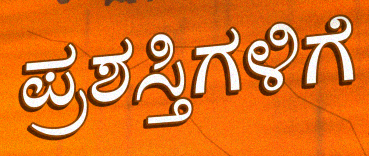
ಪ್ರಶಸ್ತಿಗಳಿಗೆ